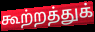
கூற்றத்துக்